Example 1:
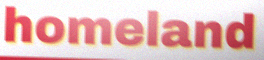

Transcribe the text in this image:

homeland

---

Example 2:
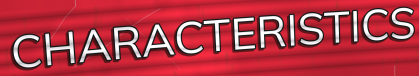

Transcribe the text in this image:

CHARACTERISTICS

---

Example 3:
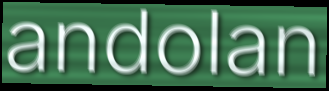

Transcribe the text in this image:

andolan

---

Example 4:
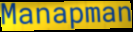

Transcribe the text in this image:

Manapman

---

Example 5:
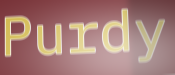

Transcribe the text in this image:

Purdy